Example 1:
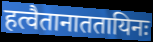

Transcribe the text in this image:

हत्वैतानाततायिनः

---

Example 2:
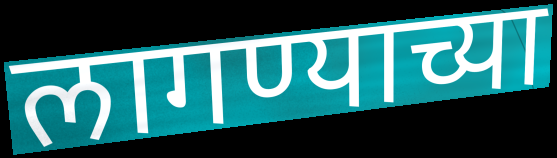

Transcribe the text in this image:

लागण्याच्या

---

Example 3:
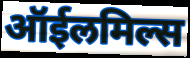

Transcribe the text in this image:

ऑईलमिल्स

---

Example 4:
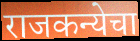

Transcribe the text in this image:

राजकन्येचा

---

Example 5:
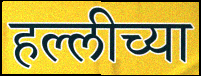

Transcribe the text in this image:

हल्लीच्या